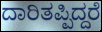
ದಾರಿತಪ್ಪಿದ್ದರೆ